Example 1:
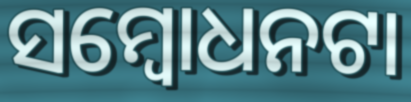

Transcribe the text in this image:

ସମ୍ବୋଧନଟା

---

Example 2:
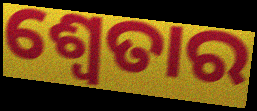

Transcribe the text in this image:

ଶ୍ୱେତାର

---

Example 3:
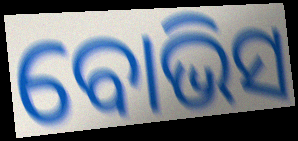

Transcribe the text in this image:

ବୋଭିସ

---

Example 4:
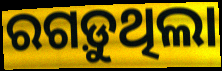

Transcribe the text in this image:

ରଗଡ଼ୁଥିଲା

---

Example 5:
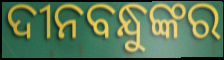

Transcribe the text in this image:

ଦୀନବନ୍ଧୁଙ୍କର